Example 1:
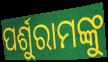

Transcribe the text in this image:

ପର୍ଶୁରାମଙ୍କୁ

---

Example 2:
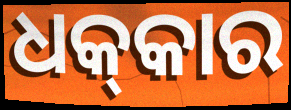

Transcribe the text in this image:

ଧକ୍‍କାର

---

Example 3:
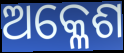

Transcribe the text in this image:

ଅକ୍ଳେଶ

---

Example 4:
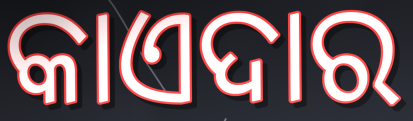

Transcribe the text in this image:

କାଏଦାର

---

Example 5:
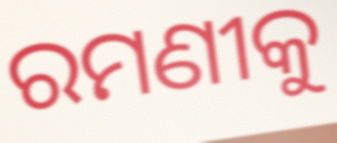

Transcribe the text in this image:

ରମଣୀକୁ